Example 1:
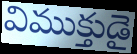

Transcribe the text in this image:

విముక్తుడై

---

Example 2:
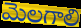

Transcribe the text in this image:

మెలగాలి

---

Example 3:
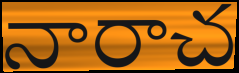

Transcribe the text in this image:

నారాచ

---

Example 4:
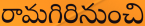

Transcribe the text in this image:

రామగిరినుంచి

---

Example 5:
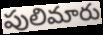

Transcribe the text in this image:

పులిమారు